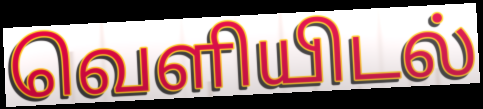
வெளியிடல்